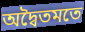
অদ্বৈতমতে